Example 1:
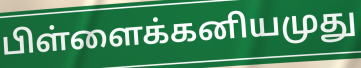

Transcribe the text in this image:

பிள்ளைக்கனியமுது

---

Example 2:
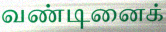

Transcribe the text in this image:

வண்டினைக்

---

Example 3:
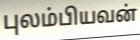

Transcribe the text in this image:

புலம்பியவன்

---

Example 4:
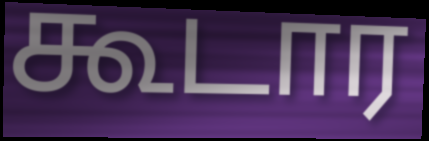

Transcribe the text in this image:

கூடார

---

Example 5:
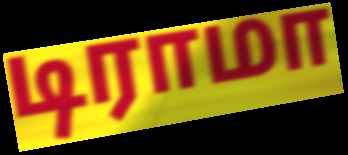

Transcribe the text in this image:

டிராமா